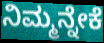
ನಿಮ್ಮನ್ನೇಕೆ